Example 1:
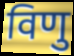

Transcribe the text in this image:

विणु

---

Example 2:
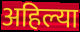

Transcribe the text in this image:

अहिल्या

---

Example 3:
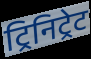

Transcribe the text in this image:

ट्रिनिट्रेट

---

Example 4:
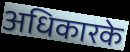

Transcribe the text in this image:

अधिकारके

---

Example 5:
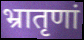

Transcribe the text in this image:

भ्रातृणां